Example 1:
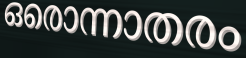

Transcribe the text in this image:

ഒരൊന്നാതരം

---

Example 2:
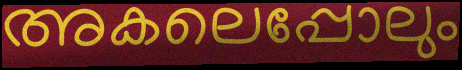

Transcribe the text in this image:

അകലെപ്പോലും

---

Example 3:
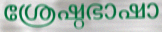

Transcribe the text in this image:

ശ്രേഷ്ഠഭാഷാ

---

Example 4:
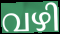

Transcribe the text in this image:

വഴി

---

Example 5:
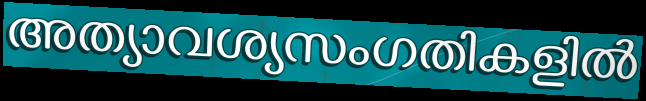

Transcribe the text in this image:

അത്യാവശ്യസംഗതികളിൽ